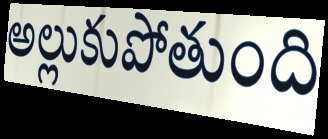
అల్లుకుపోతుంది